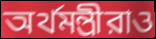
অর্থমন্ত্রীরাও